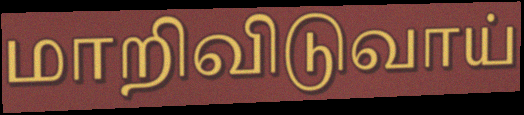
மாறிவிடுவாய்